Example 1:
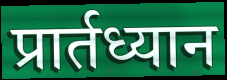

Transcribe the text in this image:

प्रार्तध्यान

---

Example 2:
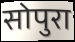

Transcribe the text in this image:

सोपुरा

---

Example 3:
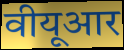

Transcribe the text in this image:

वीयूआर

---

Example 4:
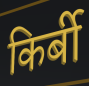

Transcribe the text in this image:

किर्बी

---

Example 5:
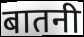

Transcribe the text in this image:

बातनी